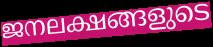
ജനലക്ഷങ്ങളുടെ